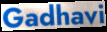
Gadhavi